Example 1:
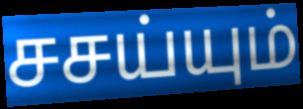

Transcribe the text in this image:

சசய்யும்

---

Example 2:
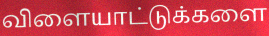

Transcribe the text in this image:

விளையாட்டுக்களை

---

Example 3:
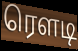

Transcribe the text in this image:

ரௌடி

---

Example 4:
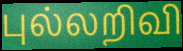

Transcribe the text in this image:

புல்லறிவி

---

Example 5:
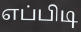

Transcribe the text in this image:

எப்பிடி